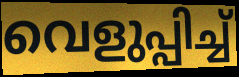
വെളുപ്പിച്ച്